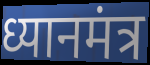
ध्यानमंत्र